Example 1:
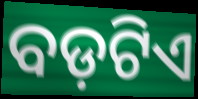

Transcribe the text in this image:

ବଡ଼ଟିଏ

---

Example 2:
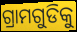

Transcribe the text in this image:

ଗ୍ରାମଗୁଡିକୁ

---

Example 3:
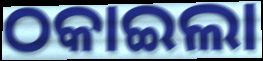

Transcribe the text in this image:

ଠକାଇଲା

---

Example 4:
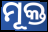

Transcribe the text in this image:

ମୂକ୍ତ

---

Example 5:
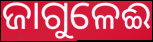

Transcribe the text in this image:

ଜାଗୁଳେଈ